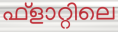
ഫ്ളാറ്റിലെ